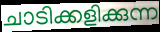
ചാടിക്കളിക്കുന്ന